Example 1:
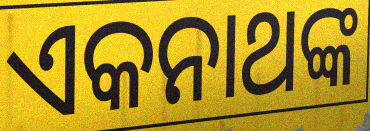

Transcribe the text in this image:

ଏକନାଥଙ୍କ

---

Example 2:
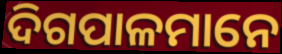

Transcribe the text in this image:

ଦିଗପାଳମାନେ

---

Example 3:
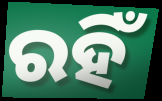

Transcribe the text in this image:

ରହିଁ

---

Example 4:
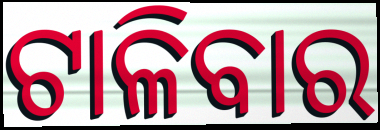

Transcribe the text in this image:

ଟାଳିବାର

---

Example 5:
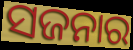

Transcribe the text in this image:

ସଜନାର